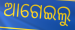
ଆଗେଇଲୁ